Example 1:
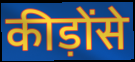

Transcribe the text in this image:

कीड़ोंसे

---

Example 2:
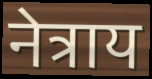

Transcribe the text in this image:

नेत्राय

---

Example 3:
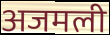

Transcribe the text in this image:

अजमली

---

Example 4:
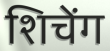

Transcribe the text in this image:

शिचेंग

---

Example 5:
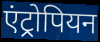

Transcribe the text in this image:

एंट्रोपियन